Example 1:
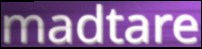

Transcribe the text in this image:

madtare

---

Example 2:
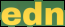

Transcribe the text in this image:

edn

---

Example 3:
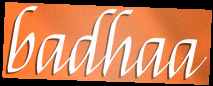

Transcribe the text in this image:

badhaa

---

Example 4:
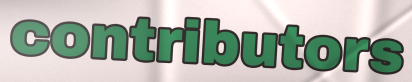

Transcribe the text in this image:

contributors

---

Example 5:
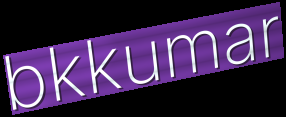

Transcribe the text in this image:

bkkumar